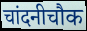
चांदनीचौक